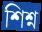
শিশ্ন